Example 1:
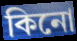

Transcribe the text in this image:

কিনো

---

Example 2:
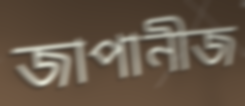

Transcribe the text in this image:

জাপানীজ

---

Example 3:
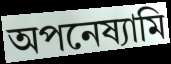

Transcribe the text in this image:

অপনেষ্যামি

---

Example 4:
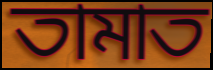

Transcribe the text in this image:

তামাত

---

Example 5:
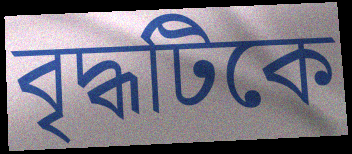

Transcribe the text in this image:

বৃদ্ধটিকে